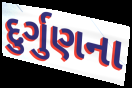
દુર્ગુણના